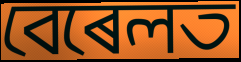
বেৰেলত